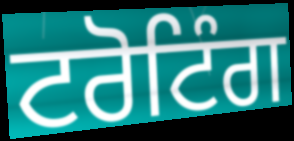
ਟਰੋਟਿੰਗ